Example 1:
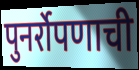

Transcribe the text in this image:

पुनर्रोपणाची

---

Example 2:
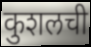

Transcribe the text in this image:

कुशलची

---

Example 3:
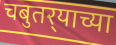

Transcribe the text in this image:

चबुतर्‍याच्या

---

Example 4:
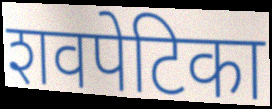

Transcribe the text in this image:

शवपेटिका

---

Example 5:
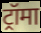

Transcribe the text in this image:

ट्रॉमा